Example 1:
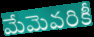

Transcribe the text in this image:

మేమెవరికీ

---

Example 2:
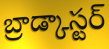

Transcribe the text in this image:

బ్రాడ్కాస్టర్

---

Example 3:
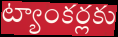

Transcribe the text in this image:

ట్యాంకర్లకు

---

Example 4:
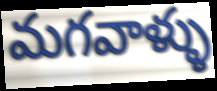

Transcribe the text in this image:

మగవాళ్ళు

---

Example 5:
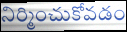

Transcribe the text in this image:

నిర్మించుకోవడం